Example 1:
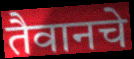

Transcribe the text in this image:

तैवानचे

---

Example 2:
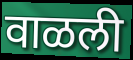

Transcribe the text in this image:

वाळली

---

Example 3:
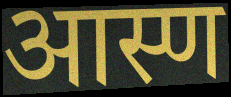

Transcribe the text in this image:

आस्ण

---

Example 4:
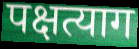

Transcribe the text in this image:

पक्षत्याग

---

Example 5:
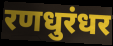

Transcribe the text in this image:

रणधुरंधर